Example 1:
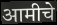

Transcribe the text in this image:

आमीचे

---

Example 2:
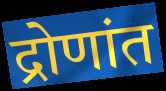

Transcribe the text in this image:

द्रोणांत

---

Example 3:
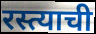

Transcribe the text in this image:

रस्त्याची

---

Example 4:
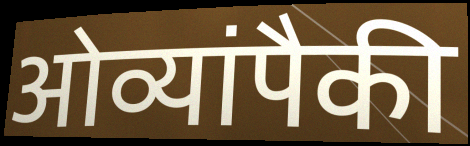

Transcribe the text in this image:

ओव्यांपैकी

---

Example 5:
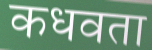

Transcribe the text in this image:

कधवता